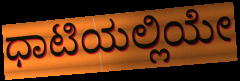
ಧಾಟಿಯಲ್ಲಿಯೇ